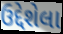
ઉદ્દેશેલા